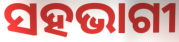
ସହଭାଗୀ